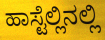
ಹಾಸ್ಟೆಲ್ಲಿನಲ್ಲಿ